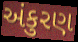
અંકુરણ